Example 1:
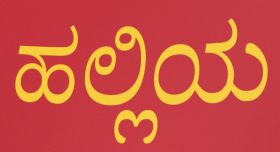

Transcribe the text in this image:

ಹಲ್ಲಿಯ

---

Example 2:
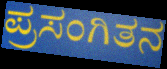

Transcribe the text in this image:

ಪ್ರಸಂಗಿತನ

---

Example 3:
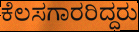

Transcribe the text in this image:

ಕೆಲಸಗಾರರಿದ್ದರು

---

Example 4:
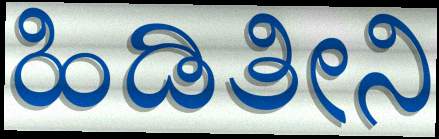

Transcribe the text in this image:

ಹಿಡಿತೀನಿ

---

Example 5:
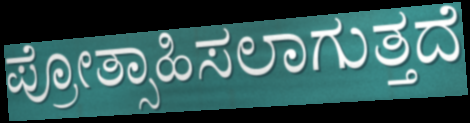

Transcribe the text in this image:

ಪ್ರೋತ್ಸಾಹಿಸಲಾಗುತ್ತದೆ